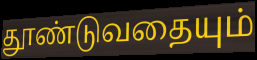
தூண்டுவதையும்